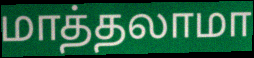
மாத்தலாமா